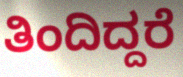
ತಿಂದಿದ್ದರೆ